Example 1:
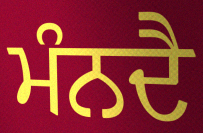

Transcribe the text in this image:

ਮੰਨਦੈ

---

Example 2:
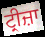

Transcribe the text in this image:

ਟ੍ਰੀਜ਼ਾ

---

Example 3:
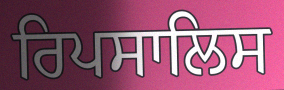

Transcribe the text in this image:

ਰਿਪਸਾਲਿਸ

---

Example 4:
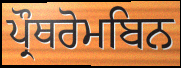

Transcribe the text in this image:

ਪ੍ਰੌਥਰੋਮਬਿਨ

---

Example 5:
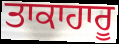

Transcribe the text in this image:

ਤਾਕਾਹਾਰੂ